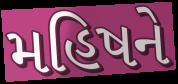
મહિષને